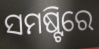
ସମଷ୍ଟିରେ